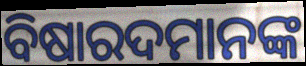
ବିଷାରଦମାନଙ୍କ